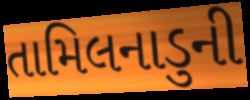
તામિલનાડુની